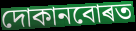
দোকানবোৰত